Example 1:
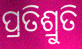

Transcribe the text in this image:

ପ୍ରତିଶ୍ରୁତି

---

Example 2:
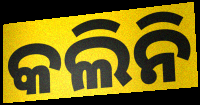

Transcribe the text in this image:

କଲିନି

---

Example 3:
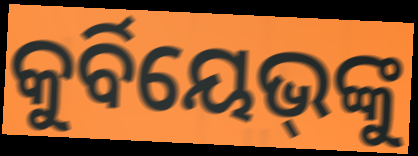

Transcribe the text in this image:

କୁର୍ବିୟେଭ୍‌ଙ୍କୁ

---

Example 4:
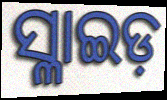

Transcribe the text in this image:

ସ୍ଳାଇଡ଼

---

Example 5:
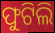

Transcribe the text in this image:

ଫୁଟିଲି